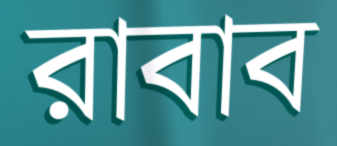
রাবাব